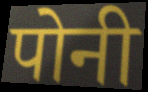
पोनी